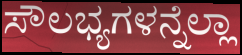
ಸೌಲಭ್ಯಗಳನ್ನೆಲ್ಲಾ